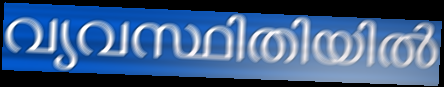
വ്യവസ്ഥിതിയിൽ